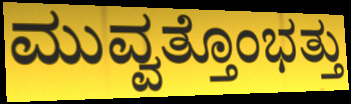
ಮುವ್ವತ್ತೊಂಭತ್ತು